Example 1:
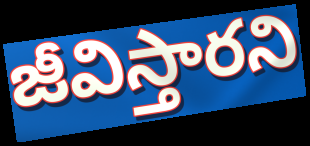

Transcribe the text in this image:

జీవిస్తారని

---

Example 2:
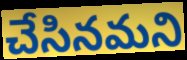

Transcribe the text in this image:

చేసినమని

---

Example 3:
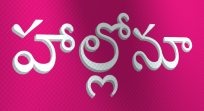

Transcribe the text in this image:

హాల్లోనూ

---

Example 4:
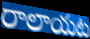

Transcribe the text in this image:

రాలాయట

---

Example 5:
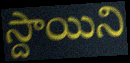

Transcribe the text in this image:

స్దాయిని